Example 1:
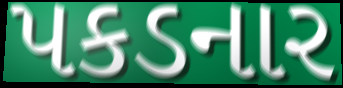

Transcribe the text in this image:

પકડનાર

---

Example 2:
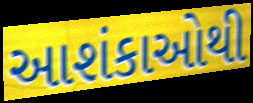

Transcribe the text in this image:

આશંકાઓથી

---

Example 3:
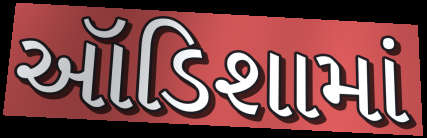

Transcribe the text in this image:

ઑડિશામાં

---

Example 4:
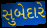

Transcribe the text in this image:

સુબેદારે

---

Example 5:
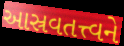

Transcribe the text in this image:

આસ્રવતત્ત્વને